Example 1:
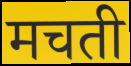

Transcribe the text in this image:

मचती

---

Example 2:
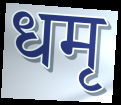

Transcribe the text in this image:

धमृ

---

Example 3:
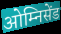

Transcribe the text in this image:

ओम्निसेंड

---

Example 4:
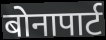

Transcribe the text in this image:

बोनापार्ट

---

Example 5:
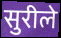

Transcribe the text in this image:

सुरीले